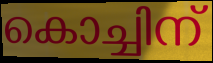
കൊച്ചിന്